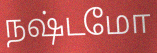
நஷ்டமோ